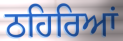
ਠਹਿਰਿਆਂ